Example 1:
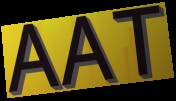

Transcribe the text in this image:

AAT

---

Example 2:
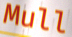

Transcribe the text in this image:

Mull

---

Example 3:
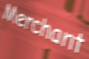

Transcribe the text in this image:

Merchant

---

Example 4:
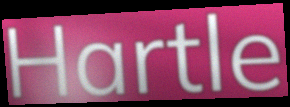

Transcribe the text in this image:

Hartle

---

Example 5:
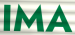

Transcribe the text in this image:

IMA